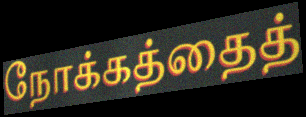
நோக்கத்தைத்